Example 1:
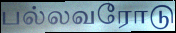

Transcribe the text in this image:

பல்லவரோடு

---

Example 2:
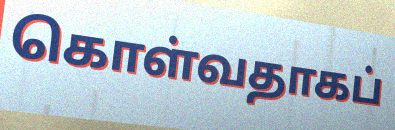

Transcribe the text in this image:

கொள்வதாகப்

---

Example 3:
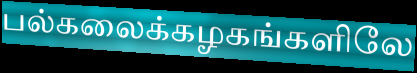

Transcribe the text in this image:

பல்கலைக்கழகங்களிலே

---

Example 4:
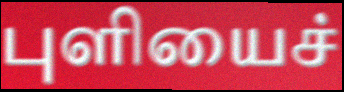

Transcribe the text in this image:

புளியைச்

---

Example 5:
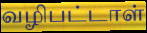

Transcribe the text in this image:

வழிபட்டாள்